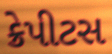
ક્રેપીટસ